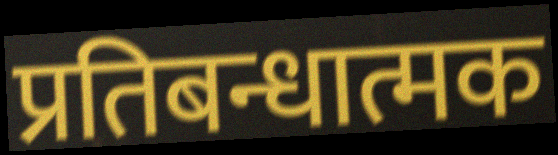
प्रतिबन्धात्मक